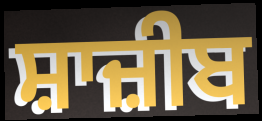
ਸ਼ਾਜ਼ੀਬ